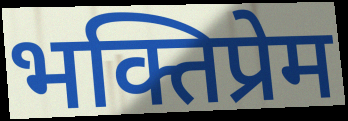
भक्तिप्रेम